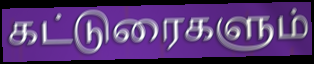
கட்டுரைகளும்